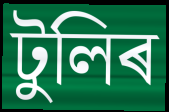
টুলিৰ